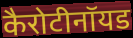
कैरोटीनॉयड